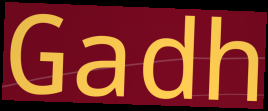
Gadh